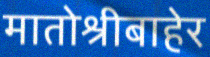
मातोश्रीबाहेर